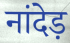
नांदेड़